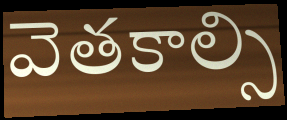
వెతకాల్సి